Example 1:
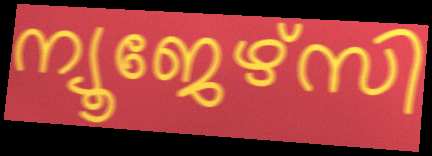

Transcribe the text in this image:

ന്യൂജേഴ്സി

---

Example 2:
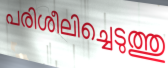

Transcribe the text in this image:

പരിശീലിച്ചെടുത്തു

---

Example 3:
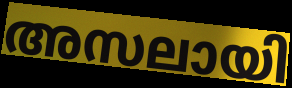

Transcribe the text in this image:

അസലായി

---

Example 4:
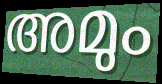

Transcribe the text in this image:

അമും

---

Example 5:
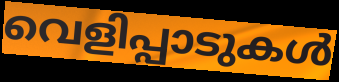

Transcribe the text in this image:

വെളിപ്പാടുകൾ